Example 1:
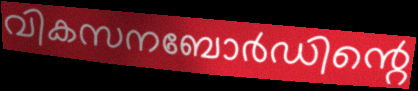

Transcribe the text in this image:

വികസനബോർഡിന്റെ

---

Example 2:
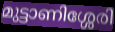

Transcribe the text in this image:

മുട്ടാണിശ്ശേരി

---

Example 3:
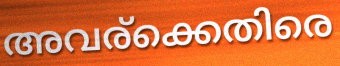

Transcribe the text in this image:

അവര്ക്കെതിരെ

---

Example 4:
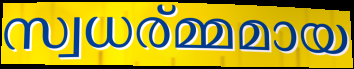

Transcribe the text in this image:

സ്വധര്മ്മമായ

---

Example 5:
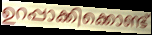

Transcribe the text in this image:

ഉറപ്പാക്കിക്കൊണ്ട്